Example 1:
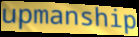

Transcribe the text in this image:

upmanship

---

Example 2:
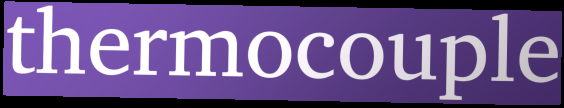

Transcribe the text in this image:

thermocouple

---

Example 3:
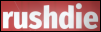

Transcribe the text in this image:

rushdie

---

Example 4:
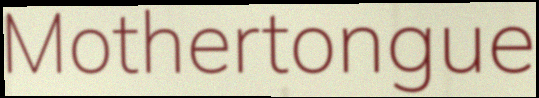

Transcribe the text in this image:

Mothertongue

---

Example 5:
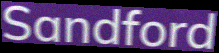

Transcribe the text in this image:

Sandford